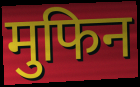
मुफिन